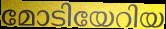
മോടിയേറിയ